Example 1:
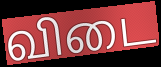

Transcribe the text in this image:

விடை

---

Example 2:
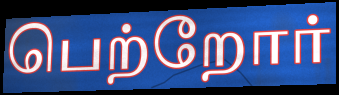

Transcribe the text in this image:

பெற்றோர்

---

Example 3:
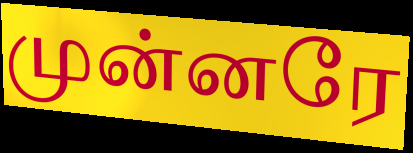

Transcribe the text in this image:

முன்னரே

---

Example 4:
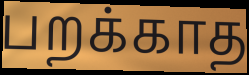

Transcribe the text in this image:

பறக்காத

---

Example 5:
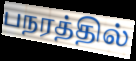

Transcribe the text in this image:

பநரத்தில்